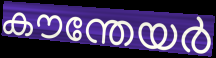
കൗന്തേയർ